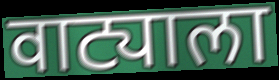
वाट्याला